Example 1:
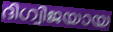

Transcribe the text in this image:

ദിഗ്വിജയായ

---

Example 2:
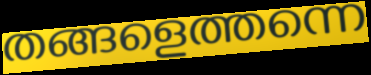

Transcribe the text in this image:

തങ്ങളെത്തന്നെ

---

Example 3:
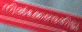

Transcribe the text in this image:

നിൽക്കേണ്ടതില്ല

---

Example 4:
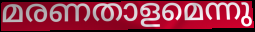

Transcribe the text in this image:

മരണതാളമെന്നു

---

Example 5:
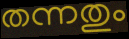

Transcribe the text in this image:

തന്നതും